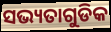
ସଭ୍ୟତାଗୁଡିକ